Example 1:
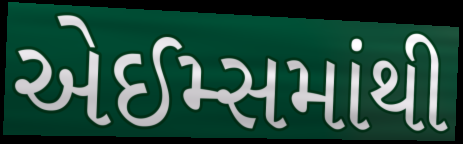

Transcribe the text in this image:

એઈમ્સમાંથી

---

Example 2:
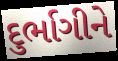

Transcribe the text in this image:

દુર્ભાગીને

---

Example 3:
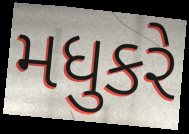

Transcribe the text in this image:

મધુકરે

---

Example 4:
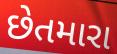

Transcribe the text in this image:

છેતમારા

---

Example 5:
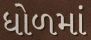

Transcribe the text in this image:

ધોળમાં